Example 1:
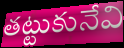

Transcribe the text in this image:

తట్టుకునేవి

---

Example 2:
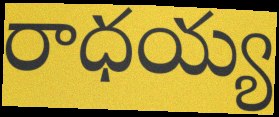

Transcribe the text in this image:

రాధయ్య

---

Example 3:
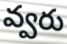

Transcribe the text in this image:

వ్వరు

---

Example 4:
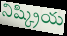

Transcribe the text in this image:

నిష్క్రియ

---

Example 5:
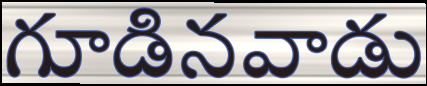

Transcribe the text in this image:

గూడినవాడు